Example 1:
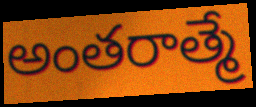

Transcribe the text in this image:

అంతరాత్మే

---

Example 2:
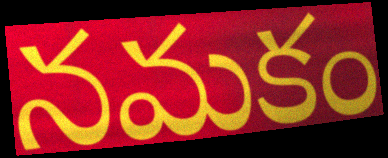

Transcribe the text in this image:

నమకం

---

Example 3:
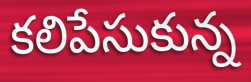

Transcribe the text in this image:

కలిపేసుకున్న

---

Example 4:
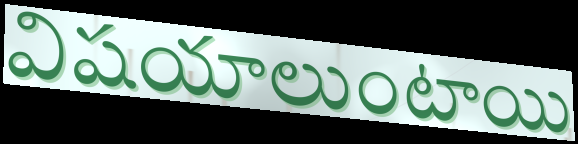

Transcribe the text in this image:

విషయాలుంటాయి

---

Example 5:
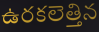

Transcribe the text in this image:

ఉరకలెత్తిన